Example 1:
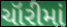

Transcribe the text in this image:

ચૉરીમાં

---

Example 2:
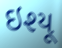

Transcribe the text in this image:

ઇશ્યૂ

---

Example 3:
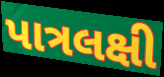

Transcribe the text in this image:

પાત્રલક્ષી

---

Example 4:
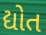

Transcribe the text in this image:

દ્યોત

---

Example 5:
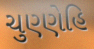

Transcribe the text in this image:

ચુણ્ણેહિ